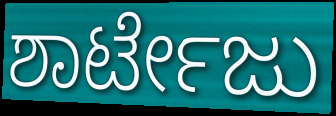
ಶಾರ್ಟೇಜು